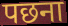
पछना